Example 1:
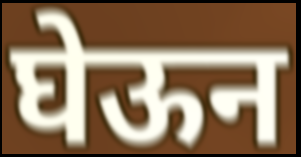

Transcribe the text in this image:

घेऊन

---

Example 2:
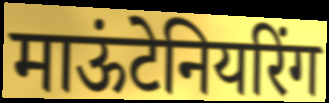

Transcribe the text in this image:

माऊंटेनियरिंग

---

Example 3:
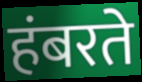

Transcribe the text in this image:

हंबरते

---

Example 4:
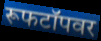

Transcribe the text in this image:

रूफटॉपवर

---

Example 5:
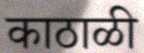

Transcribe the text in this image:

काठाळी